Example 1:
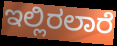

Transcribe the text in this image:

ಇಲ್ಲಿರಲಾರೆ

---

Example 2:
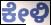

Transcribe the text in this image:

ಕೇಳಿ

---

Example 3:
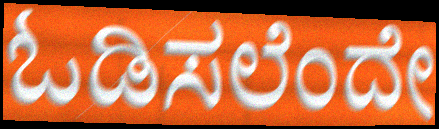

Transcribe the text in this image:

ಓಡಿಸಲೆಂದೇ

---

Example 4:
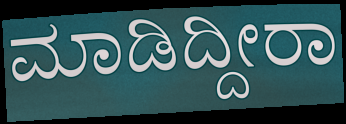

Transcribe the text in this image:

ಮಾಡಿದ್ದೀರಾ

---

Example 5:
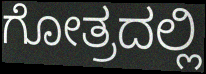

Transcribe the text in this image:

ಗೋತ್ರದಲ್ಲಿ